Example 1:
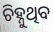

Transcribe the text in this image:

ଚିହ୍ନୁଥିବ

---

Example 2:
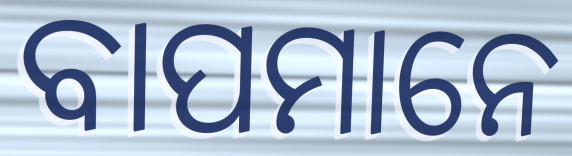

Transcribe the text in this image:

ବାପମାନେ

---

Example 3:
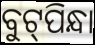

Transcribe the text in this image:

ବୁଟ୍‌ପିନ୍ଧା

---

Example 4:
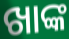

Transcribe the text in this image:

ଖାଙ୍କ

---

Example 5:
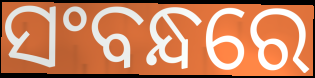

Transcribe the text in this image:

ସଂବନ୍ଧରେ